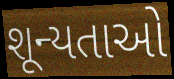
શૂન્યતાઓ